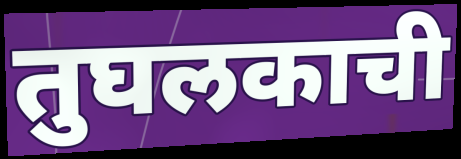
तुघलकाची